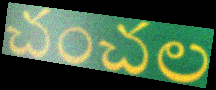
చంచల